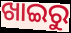
ଖାଇରୁ